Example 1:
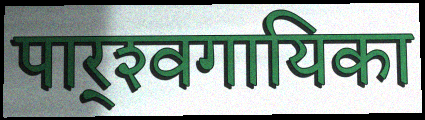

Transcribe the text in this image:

पार्श्वगायिका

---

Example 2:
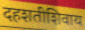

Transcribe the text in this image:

दहशतीशिवाय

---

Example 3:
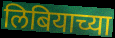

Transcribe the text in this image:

लिबियाच्या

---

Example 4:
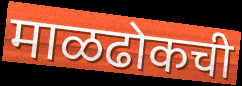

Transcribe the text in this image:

माळढोकची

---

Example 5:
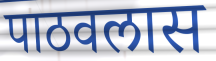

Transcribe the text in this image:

पाठवलास